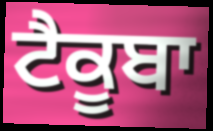
ਟੈਕੂਬਾ